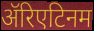
ॲरिएटिनम